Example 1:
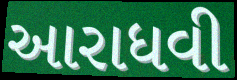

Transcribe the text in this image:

આરાધવી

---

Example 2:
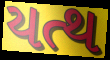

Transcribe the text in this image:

યત્થ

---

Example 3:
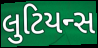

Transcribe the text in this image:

લુટિયન્સ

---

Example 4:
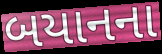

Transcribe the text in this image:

બયાનના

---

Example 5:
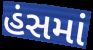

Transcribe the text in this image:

હંસમાં